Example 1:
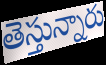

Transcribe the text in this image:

తెస్తున్నారు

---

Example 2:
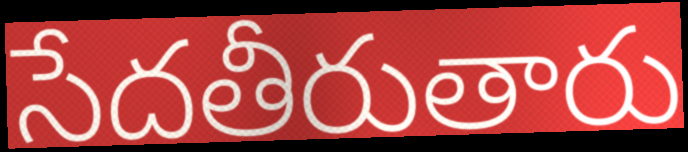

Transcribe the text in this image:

సేదతీరుతారు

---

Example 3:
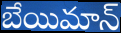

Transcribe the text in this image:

బేయిమాన్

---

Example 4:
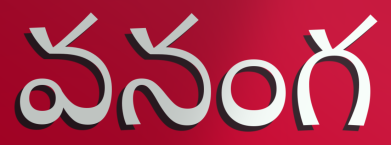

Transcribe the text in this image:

వనంగ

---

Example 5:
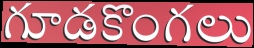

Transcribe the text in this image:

గూడకొంగలు